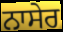
ਨਾਸੇਰ